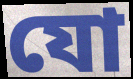
যো